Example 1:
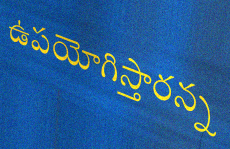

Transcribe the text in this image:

ఉపయోగిస్తారన్న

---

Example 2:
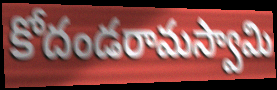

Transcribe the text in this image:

కోదండరామస్వామి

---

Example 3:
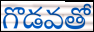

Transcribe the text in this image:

గొడవతో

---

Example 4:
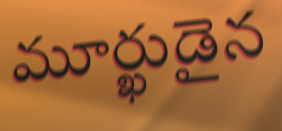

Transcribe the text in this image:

మూర్ఖుడైన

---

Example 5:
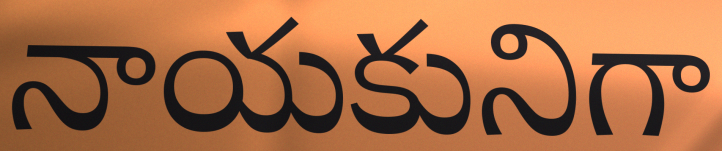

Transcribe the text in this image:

నాయకునిగా